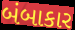
બંબાકાર